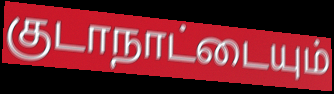
குடாநாட்டையும்